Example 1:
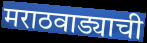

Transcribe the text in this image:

मराठवाड्याची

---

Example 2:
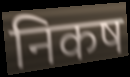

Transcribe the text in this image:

निकष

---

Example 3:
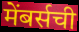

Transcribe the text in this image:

मेंबर्सची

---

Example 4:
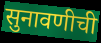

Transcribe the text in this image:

सुनावणीची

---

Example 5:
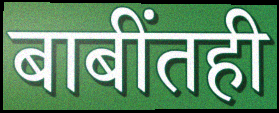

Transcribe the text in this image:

बाबींतही